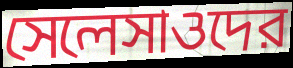
সেলেসাওদের